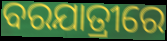
ବରଯାତ୍ରୀରେ